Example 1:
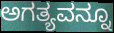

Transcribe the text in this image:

ಅಗತ್ಯವನ್ನೂ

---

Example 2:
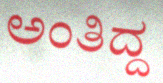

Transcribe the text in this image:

ಅಂತಿದ್ದ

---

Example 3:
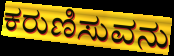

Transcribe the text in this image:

ಕರುಣಿಸುವನು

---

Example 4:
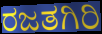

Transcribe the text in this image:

ರಜತಗಿರಿ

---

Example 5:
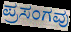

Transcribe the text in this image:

ಪ್ರಸಂಗವು